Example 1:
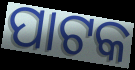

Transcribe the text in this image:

ପାଟକ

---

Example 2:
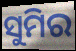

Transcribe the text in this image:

ସୁମିର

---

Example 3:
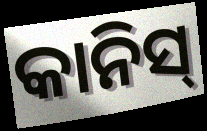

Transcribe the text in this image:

କାନିସ୍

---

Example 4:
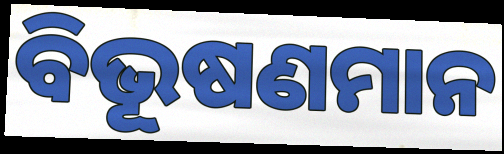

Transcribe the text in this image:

ବିଭୂଷଣମାନ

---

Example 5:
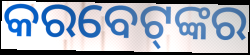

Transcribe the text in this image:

କରବେଟ୍‌ଙ୍କର